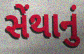
સેંથાનું